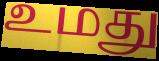
உமது